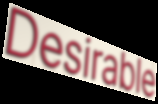
Desirable